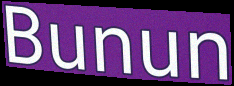
Bunun